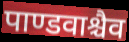
पाण्डवाश्चैव